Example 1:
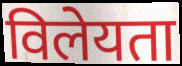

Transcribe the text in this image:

विलेयता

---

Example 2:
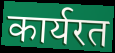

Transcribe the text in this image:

कार्यरत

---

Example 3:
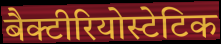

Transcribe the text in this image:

बैक्टीरियोस्टेटिक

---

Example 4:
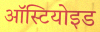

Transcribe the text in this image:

ऑस्टियोइड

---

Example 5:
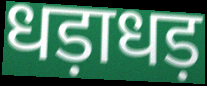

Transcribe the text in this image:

धड़ाधड़